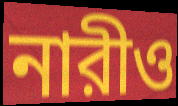
নারীও